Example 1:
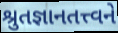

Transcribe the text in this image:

શ્રુતજ્ઞાનતત્ત્વને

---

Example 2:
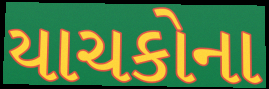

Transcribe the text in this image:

યાચકોના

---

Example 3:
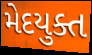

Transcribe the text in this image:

મેદયુક્ત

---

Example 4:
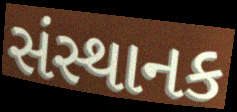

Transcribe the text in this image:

સંસ્થાનક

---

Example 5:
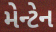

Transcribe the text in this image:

મેન્ટેન